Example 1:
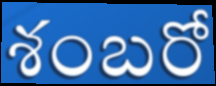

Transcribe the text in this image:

శంబరో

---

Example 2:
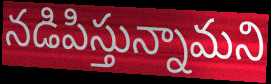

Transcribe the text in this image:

నడిపిస్తున్నామని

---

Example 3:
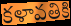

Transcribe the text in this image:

కళావతికి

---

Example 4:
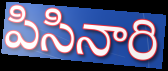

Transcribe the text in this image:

పిసినారి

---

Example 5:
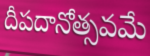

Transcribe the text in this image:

దీపదానోత్సవమే